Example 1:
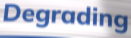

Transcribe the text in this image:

Degrading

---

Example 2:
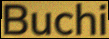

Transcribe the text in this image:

Buchi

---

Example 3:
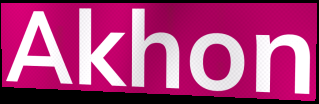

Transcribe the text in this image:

Akhon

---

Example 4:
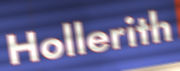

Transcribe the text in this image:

Hollerith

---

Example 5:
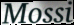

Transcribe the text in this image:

Mossi